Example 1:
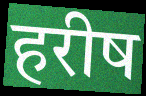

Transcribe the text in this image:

हरीष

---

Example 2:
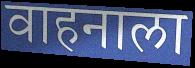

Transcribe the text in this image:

वाहनाला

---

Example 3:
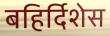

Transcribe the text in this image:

बहिर्दिशेस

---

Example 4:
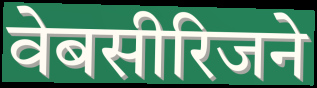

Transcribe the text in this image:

वेबसीरिजने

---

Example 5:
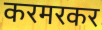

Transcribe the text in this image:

करमरकर